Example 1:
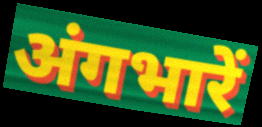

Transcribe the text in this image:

अंगभारें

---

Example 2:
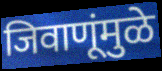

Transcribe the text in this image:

जिवाणूंमुळे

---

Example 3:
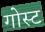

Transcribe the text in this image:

गोस्ट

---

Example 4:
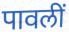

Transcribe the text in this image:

पावलीं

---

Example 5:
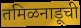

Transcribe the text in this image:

तमिळनाडूची